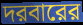
দরবারের